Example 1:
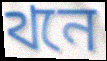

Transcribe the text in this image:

থনে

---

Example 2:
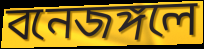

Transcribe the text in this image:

বনেজঙ্গলে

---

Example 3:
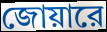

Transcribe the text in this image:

জোয়ারে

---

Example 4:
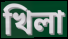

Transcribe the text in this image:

খিলা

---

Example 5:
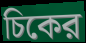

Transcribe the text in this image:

চিকের